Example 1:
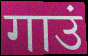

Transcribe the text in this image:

गाउं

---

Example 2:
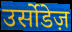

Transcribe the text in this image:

उर्सोडेज़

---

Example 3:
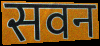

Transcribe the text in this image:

सवन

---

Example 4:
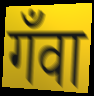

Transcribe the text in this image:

गँवा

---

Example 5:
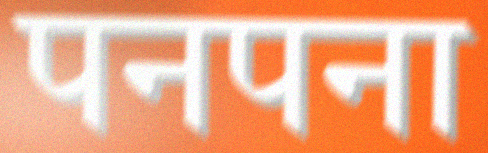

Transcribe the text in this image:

पनपना